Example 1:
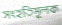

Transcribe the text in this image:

সংহতিমূলক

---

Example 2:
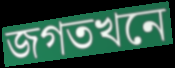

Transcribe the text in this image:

জগতখনে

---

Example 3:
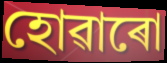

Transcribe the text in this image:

হোৱাৰো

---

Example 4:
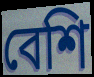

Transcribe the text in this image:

বেশি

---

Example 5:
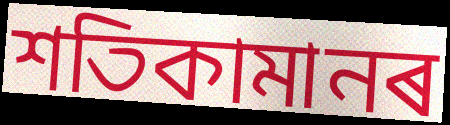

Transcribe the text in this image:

শতিকামানৰ